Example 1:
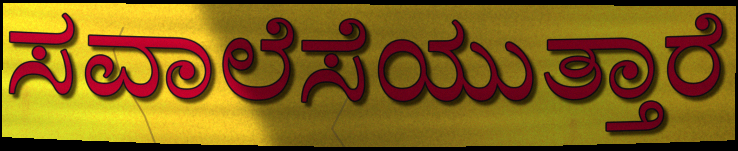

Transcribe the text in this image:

ಸವಾಲೆಸೆಯುತ್ತಾರೆ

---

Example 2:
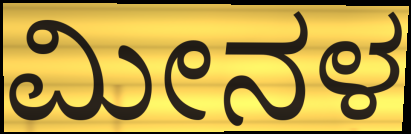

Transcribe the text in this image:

ಮೀನಳ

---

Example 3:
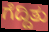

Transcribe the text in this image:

ಗೆದ್ದಿತು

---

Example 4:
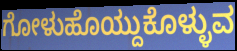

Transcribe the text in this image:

ಗೋಳುಹೊಯ್ದುಕೊಳ್ಳುವ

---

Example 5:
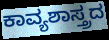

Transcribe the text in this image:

ಕಾವ್ಯಶಾಸ್ತ್ರದ